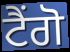
ਟੈਂਗੋ